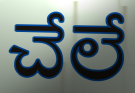
చేలే